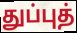
துப்புத்